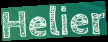
Helier